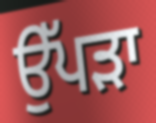
ਉੱਪੜਾ